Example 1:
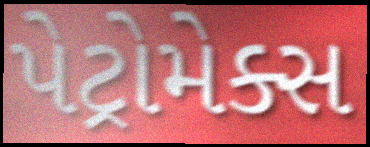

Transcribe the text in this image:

પેટ્રોમેક્સ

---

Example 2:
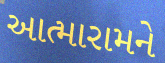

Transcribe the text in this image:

આત્મારામને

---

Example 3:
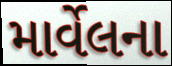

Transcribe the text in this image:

માર્વેલના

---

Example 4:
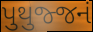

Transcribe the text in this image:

પુથુજ્જનં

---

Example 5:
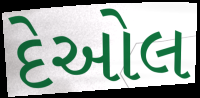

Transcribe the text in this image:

દેઓલ